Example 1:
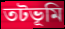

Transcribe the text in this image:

তটভূমি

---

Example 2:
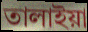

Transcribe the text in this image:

তালাইয়া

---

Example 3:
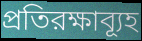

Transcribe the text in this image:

প্রতিরক্ষাব্যূহ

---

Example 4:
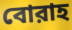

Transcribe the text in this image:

বোরাহ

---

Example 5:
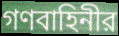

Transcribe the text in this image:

গণবাহিনীর